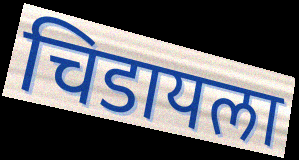
चिडायला